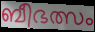
ബീഭത്സം